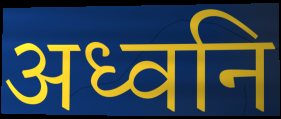
अध्वनि